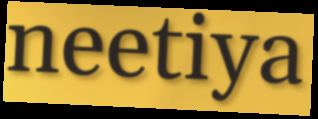
neetiya